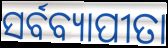
ସର୍ବବ୍ୟାପୀତା